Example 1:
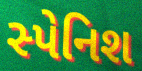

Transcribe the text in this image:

સ્પેનિશ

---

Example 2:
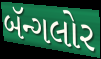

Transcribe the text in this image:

બૅન્ગલોર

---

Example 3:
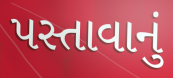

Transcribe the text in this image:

પસ્તાવાનું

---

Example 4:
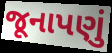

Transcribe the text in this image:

જૂનાપણું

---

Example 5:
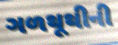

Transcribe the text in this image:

ગળથૂથીની